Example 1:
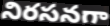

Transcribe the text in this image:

నిరసనగా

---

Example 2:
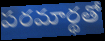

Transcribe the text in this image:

పరమార్థతో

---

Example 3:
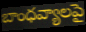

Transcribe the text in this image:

బాంధవ్యాలపై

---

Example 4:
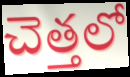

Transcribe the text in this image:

చెత్తలో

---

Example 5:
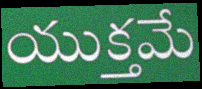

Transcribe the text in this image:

యుక్తమే